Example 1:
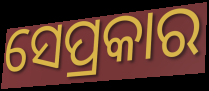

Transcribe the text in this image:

ସେପ୍ରକାର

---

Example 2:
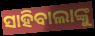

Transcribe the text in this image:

ସାହିବାଲାଙ୍କୁ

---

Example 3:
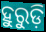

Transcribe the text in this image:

ହୁରୁଡ଼ି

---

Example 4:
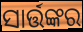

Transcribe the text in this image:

ସାର୍ତ୍ତଙ୍କର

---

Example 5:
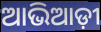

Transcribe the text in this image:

ଆଭିଆଡ଼ୀ